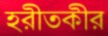
হরীতকীর